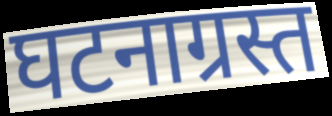
घटनाग्रस्त